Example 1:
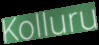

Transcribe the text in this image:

Kolluru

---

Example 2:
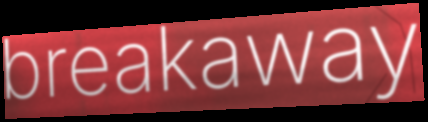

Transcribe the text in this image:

breakaway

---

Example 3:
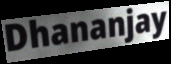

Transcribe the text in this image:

Dhananjay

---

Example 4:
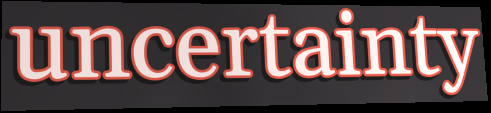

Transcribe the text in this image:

uncertainty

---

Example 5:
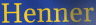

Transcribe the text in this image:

Henner